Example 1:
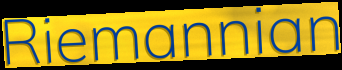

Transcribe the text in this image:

Riemannian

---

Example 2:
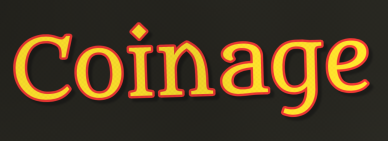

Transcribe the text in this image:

Coinage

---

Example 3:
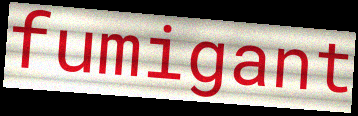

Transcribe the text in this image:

fumigant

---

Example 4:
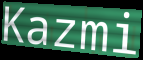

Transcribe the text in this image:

Kazmi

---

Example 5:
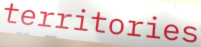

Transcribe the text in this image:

territories